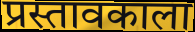
प्रस्तावकाला